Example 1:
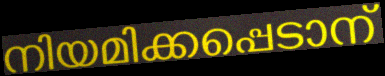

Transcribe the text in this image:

നിയമിക്കപ്പെടാന്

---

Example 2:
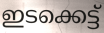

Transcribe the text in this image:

ഇടക്കെട്ട്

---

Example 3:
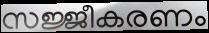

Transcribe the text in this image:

സജ്ജീകരണം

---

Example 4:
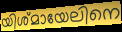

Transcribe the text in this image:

യിശ്മായേലിനെ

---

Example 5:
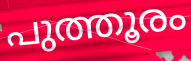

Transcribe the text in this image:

പുത്തൂരം